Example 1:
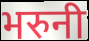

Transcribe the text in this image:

भरुनी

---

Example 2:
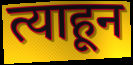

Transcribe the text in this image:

त्याहून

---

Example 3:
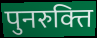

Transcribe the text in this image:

पुनरुक्ति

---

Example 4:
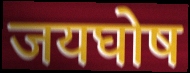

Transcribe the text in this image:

जयघोष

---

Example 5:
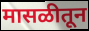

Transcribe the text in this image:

मासळीतून